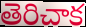
తెరిచాక